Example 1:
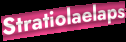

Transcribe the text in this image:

Stratiolaelaps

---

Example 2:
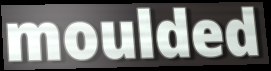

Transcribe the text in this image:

moulded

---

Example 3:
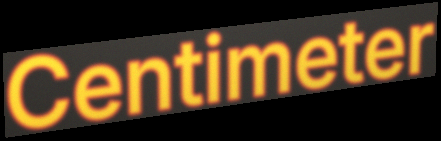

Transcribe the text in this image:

Centimeter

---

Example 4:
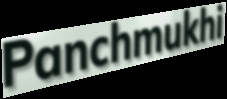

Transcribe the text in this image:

Panchmukhi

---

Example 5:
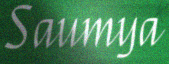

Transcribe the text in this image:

Saumya